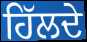
ਹਿੱਲਦੇ